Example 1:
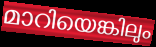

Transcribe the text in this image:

മാറിയെങ്കിലും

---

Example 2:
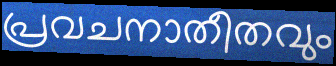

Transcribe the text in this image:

പ്രവചനാതീതവും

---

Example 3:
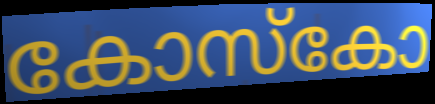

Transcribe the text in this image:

കോസ്കോ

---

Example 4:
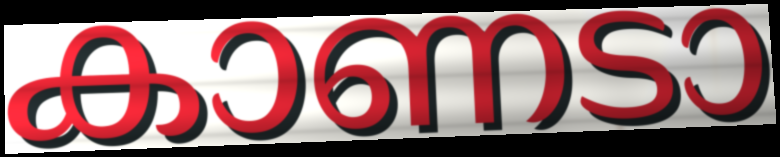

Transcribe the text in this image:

കാണടാ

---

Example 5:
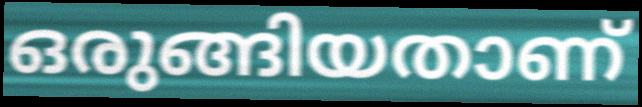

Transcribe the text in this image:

ഒരുങ്ങിയതാണ്